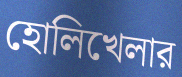
হোলিখেলার